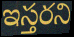
ఇస్తరని